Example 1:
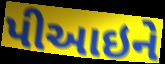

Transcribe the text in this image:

પીઆઇને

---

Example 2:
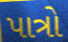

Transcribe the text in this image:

પાત્રો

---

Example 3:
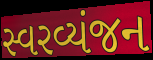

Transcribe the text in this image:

સ્વરવ્યંજન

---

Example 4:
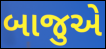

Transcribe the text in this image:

બાજુએ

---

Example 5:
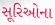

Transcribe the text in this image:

સૂરિઓના